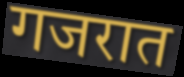
गजरात